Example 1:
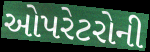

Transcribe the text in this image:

ઓપરેટરોની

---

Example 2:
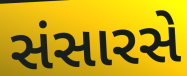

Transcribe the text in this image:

સંસારસે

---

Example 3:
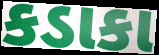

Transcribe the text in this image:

કડાકા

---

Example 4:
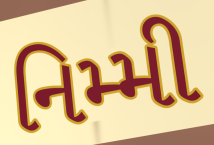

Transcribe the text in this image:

નિમ્મી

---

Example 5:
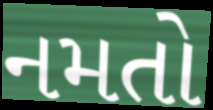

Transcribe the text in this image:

નમતો